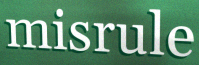
misrule